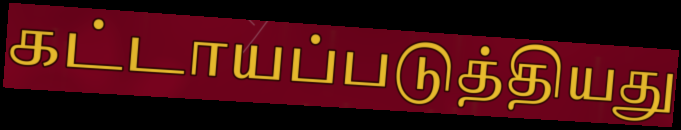
கட்டாயப்படுத்தியது